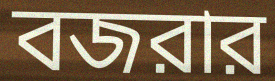
বজরার